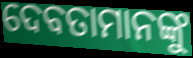
ଦେବତାମାନଙ୍କୁ